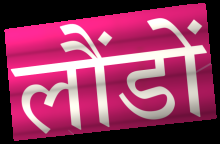
लौंडों